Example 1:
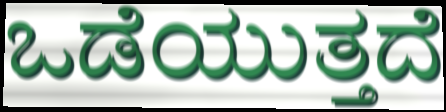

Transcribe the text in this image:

ಒಡೆಯುತ್ತದೆ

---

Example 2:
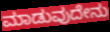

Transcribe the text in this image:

ಮಾಡುವುದೇನು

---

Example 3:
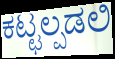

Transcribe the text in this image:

ಕಟ್ಟಲ್ಪಡಲಿ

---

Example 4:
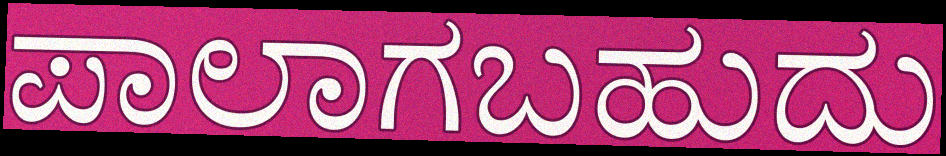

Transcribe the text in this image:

ಪಾಲಾಗಬಹುದು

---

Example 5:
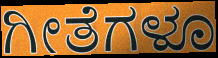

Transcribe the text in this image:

ಗೀತೆಗಳೂ